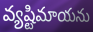
వ్యష్టిమాయను